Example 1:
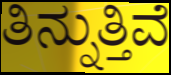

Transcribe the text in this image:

ತಿನ್ನುತ್ತಿವೆ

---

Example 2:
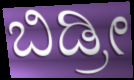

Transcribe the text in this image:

ಬಿಡ್ರೀ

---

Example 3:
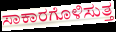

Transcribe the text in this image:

ಸಾಕಾರಗೊಳಿಸುತ್ತ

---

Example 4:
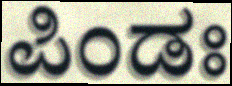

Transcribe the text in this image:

ಪಿಂಡಃ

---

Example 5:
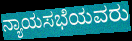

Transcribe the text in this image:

ನ್ಯಾಯಸಭೆಯವರು